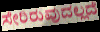
ಸೇರಿರುವುದಲ್ಲದೆ